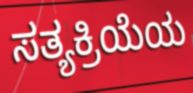
ಸತ್ಯಕ್ರಿಯೆಯ